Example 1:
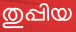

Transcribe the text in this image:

തുപ്പിയ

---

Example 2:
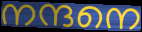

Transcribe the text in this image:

നന്ദനെ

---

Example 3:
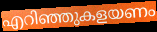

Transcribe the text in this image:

എറിഞ്ഞുകളയണം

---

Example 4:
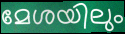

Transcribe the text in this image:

മേശയിലും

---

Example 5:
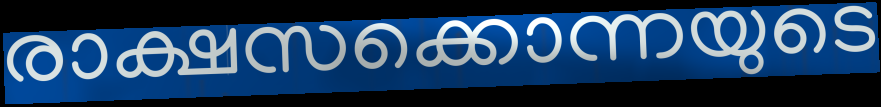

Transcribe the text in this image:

രാക്ഷസക്കൊന്നയുടെ